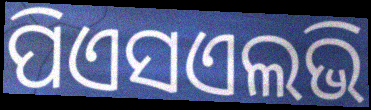
ପିଏସଏଲଭି